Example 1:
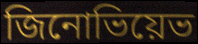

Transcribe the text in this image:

জিনোভিয়েভ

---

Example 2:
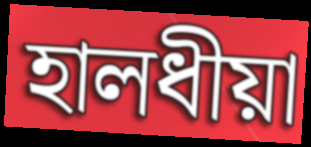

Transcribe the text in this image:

হালধীয়া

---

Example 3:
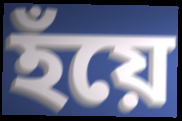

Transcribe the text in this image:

হঁয়ে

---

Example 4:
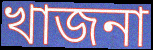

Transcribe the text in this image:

খাজনা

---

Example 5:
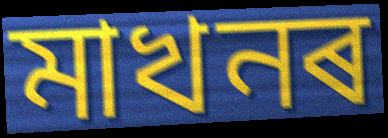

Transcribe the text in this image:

মাখনৰ